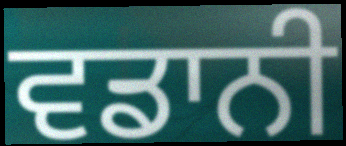
ਵਡਾਨੀ